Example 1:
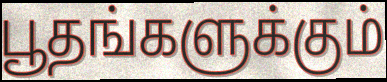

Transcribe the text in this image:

பூதங்களுக்கும்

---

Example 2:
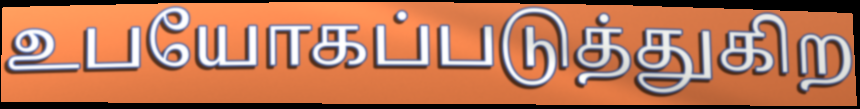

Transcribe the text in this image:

உபயோகப்படுத்துகிற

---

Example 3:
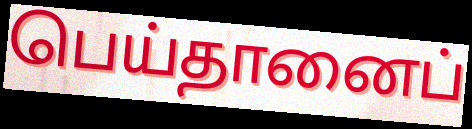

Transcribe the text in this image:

பெய்தானைப்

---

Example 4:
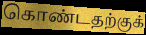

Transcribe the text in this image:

கொண்டதற்குக்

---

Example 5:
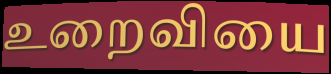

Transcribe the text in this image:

உறைவியை